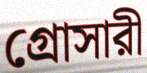
গ্রোসারী